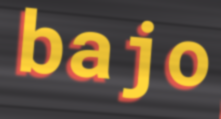
bajo